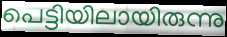
പെട്ടിയിലായിരുന്നു